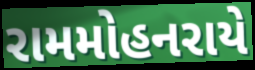
રામમોહનરાયે